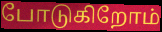
போடுகிறோம்